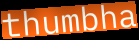
thumbha